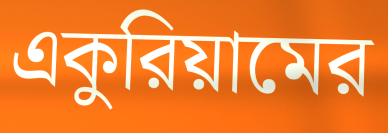
একুরিয়ামের